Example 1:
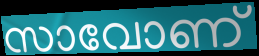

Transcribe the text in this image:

സാവോണ്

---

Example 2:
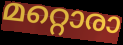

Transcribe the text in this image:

മറ്റൊരാ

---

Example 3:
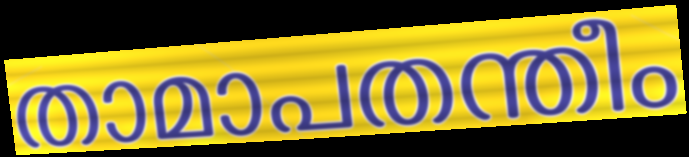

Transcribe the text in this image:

താമാപതന്തീം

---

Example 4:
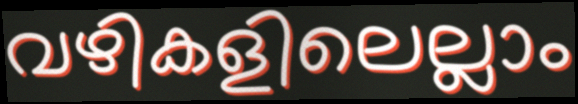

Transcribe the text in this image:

വഴികളിലെല്ലാം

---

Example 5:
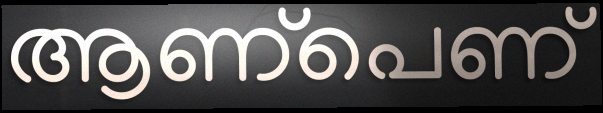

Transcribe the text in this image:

ആണ്പെണ്